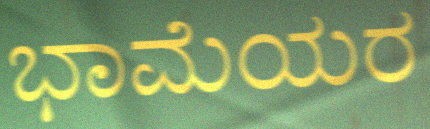
ಭಾಮೆಯರ